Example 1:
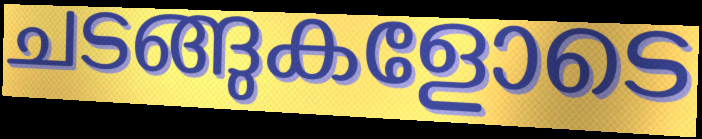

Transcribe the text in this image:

ചടങ്ങുകളോടെ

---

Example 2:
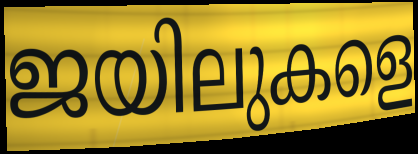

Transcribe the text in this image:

ജയിലുകളെ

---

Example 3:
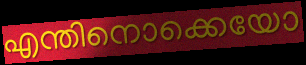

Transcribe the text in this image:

എന്തിനൊക്കെയോ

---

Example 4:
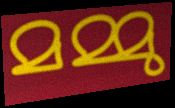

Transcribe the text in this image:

മമ്മു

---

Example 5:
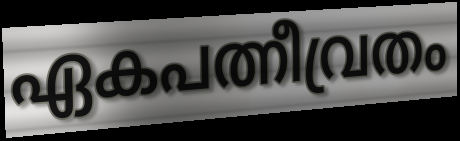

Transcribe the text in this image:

ഏകപത്നീവ്രതം